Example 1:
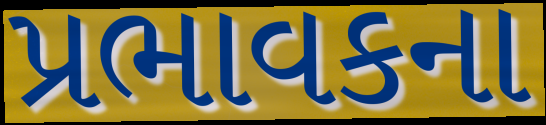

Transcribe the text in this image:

પ્રભાવકના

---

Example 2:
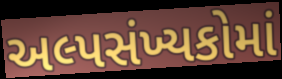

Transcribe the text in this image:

અલ્પસંખ્યકોમાં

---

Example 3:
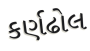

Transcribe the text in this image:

કર્ણઢોલ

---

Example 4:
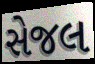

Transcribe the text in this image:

સેજલ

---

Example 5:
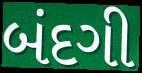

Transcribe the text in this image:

બંદગી